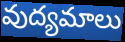
వుద్యమాలు